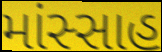
માંસ્સાહ